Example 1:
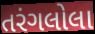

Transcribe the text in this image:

તરંગલોલા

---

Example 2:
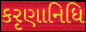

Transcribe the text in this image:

કરૃણાનિધિ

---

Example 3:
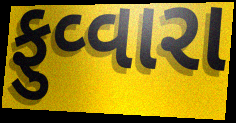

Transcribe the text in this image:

ફુવ્વારા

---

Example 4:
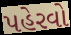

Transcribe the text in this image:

પહેરવો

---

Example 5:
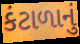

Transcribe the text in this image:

કંટાળાનું